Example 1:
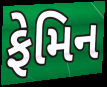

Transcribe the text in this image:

ફેમિન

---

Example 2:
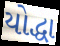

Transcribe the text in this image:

યોદ્ધા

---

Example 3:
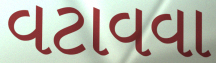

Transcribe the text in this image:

વટાવવા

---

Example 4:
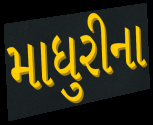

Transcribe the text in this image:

માધુરીના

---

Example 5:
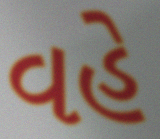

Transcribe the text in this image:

વહે